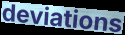
deviations